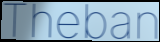
Theban